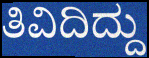
ತಿವಿದಿದ್ದು